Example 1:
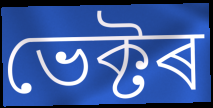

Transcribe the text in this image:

ভেক্টৰ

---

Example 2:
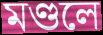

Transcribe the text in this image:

মণ্ডলে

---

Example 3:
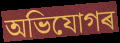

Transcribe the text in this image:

অভিযোগৰ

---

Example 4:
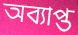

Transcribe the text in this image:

অব্যাপ্ত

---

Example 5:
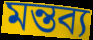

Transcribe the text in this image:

মন্তব্য